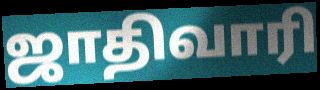
ஜாதிவாரி